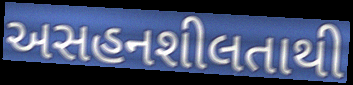
અસહનશીલતાથી